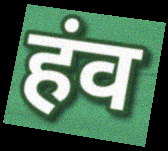
हंव